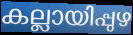
കല്ലായിപ്പുഴ